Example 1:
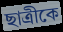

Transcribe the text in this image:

ছাত্রীকে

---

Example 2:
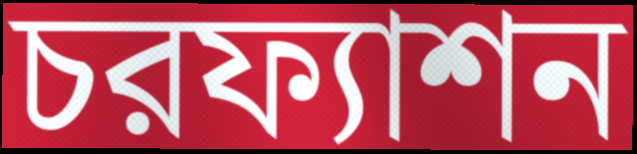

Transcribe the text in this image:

চরফ্যাশন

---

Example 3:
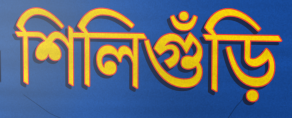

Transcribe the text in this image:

শিলিগুঁড়ি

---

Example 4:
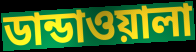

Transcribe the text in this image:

ডান্ডাওয়ালা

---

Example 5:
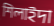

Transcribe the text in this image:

শিলাইদা